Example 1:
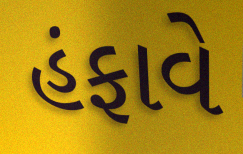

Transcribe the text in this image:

હંફાવે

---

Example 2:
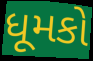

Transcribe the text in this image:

ધૂમકો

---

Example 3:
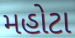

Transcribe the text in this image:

મહોટા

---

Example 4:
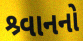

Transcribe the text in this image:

શ્ર્વાનનો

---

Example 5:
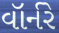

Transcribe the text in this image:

વૉર્નરે